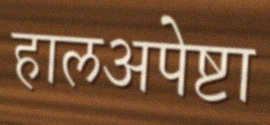
हालअपेष्टा